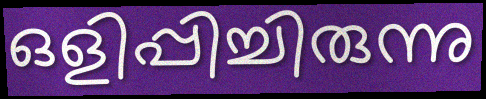
ഒളിപ്പിച്ചിരുന്നു